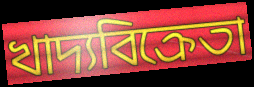
খাদ্যবিক্রেতা